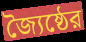
জ্যৈষ্ঠের